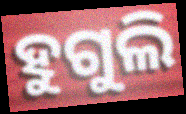
ହୁଗୁଲି